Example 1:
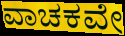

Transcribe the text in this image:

ವಾಚಕವೇ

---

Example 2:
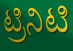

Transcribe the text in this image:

ಟ್ರಿನಿಟಿ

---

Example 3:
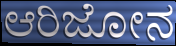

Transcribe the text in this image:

ಆರಿಜೋನ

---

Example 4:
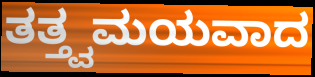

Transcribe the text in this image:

ತತ್ತ್ವಮಯವಾದ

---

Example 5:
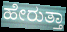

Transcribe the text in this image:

ಹೇರುತ್ತಾ